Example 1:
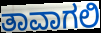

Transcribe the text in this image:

ತಾವಾಗಲಿ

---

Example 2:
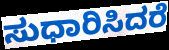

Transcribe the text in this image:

ಸುಧಾರಿಸಿದರೆ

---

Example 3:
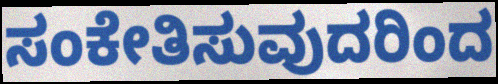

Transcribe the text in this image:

ಸಂಕೇತಿಸುವುದರಿಂದ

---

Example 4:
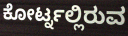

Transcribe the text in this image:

ಕೋರ್ಟ್ನಲ್ಲಿರುವ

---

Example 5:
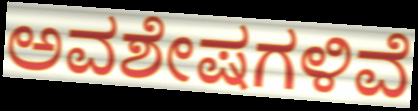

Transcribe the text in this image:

ಅವಶೇಷಗಳಿವೆ